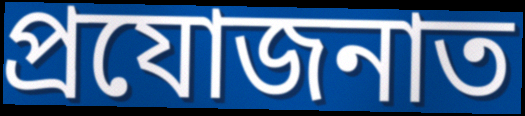
প্ৰযোজনাত